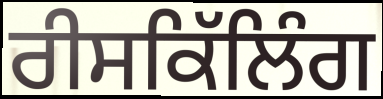
ਰੀਸਕਿੱਲਿੰਗ